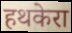
हथकेरा